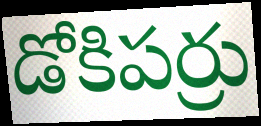
డోకిపర్రు